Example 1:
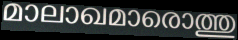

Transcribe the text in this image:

മാലാഖമാരൊത്തു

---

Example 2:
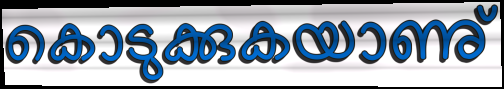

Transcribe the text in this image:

കൊടുക്കുകയാണു്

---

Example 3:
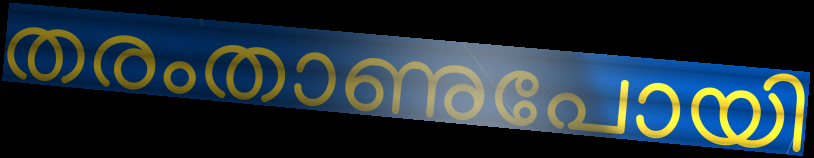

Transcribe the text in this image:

തരംതാണുപോയി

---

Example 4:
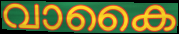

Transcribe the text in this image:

വാകൈ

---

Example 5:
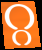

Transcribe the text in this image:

റ്റ